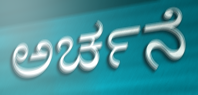
ಅರ್ಚನೆ